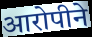
आरोपीने